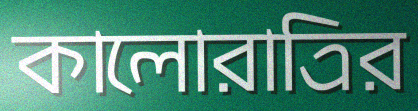
কালোরাত্রির